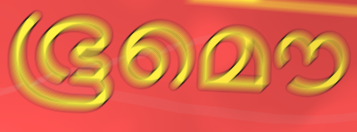
ഭൂമൌ